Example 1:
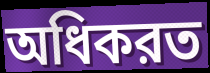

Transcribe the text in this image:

অধিকরত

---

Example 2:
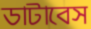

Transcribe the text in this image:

ডাটাবেস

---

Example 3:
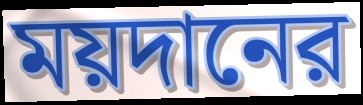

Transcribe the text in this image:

ময়দানের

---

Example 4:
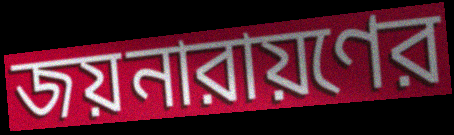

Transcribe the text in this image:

জয়নারায়ণের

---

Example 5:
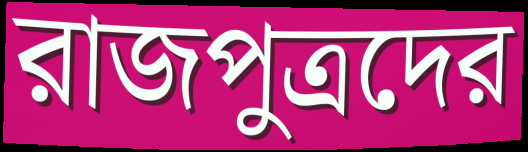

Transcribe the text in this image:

রাজপুত্রদের